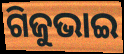
ଗିଜୁଭାଇ